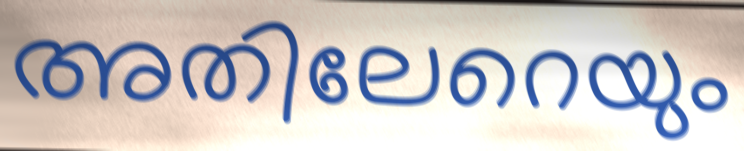
അതിലേറെയും